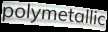
polymetallic